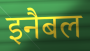
इनैबल